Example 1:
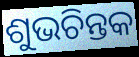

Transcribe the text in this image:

ଶୁଭଚିନ୍ତକ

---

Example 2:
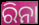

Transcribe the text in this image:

ରିନା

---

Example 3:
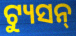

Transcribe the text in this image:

ଟ୍ୟୁସନ୍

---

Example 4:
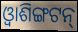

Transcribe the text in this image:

ଓ୍ୱାଶିଙ୍ଗଟନ୍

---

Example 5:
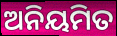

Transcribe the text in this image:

ଅନିୟମିତ